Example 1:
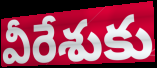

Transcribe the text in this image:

వీరేశుకు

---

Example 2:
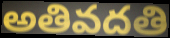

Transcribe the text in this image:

అతివదతి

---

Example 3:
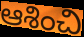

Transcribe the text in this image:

ఆశించి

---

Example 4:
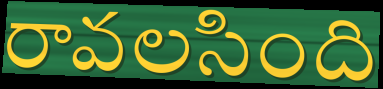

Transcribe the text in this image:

రావలసింది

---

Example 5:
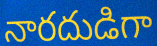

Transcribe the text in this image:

నారదుడిగా